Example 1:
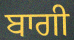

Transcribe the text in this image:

ਬਾਗੀ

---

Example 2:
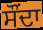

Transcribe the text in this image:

ਸੌਂਦਾ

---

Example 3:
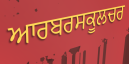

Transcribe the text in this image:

ਆਰਬਰਸਕੂਲਚਰ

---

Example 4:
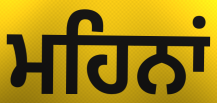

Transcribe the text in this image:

ਮਹਿਨਾਂ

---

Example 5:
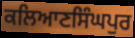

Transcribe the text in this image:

ਕਲਿਆਣਸਿੰਘਪੁਰ